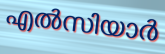
എൽസിയാർ